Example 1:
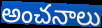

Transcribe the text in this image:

అంచనాలు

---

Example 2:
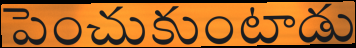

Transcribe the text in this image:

పెంచుకుంటాడు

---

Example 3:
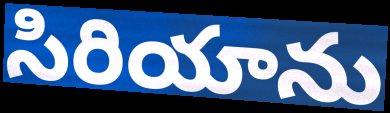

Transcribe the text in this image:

సిరియాను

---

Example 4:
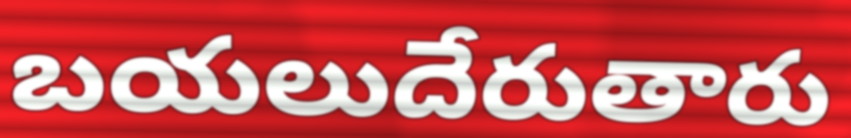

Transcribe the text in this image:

బయలుదేరుతారు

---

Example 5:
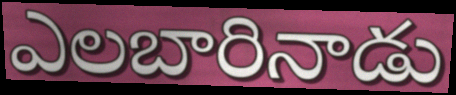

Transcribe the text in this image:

ఎలబారినాడు